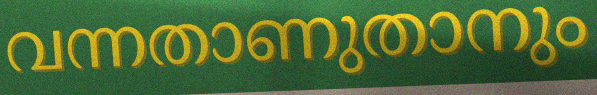
വന്നതാണുതാനും